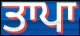
ਤਾਪਾ